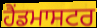
ਹੈਂਡਮਾਸਟਰ